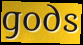
gods